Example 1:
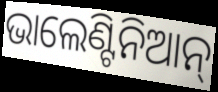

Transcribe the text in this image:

ଭାଲେଣ୍ଟିନିଆନ୍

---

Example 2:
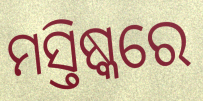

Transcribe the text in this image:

ମସ୍ତିଷ୍କରେ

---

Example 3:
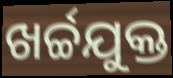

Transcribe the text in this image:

ଖର୍ଚ୍ଚଯୁକ୍ତ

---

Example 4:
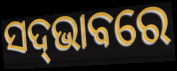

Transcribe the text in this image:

ସଦ୍‌ଭାବରେ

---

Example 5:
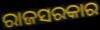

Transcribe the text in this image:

ରାଜସରକାର